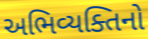
અભિવ્યક્તિનો